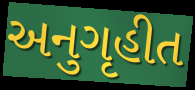
અનુગૃહીત